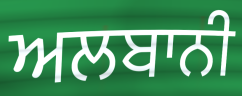
ਅਲਬਾਨੀ